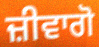
ਜ਼ੀਵਾਗੋ